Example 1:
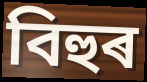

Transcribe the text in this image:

বিহুৰ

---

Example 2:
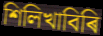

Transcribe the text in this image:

শিলিখাবিৰি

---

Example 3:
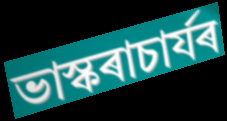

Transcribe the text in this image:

ভাস্কৰাচাৰ্যৰ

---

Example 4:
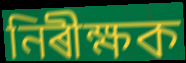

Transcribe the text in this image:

নিৰীক্ষক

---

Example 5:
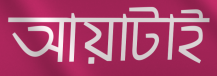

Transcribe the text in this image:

আয়াটাই